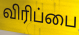
விரிப்பை